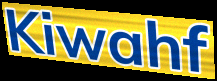
Kiwahf